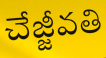
చేజ్జీవతి